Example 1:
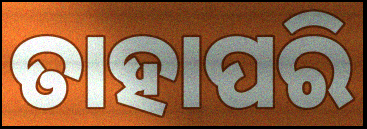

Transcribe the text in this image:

ତାହାପରି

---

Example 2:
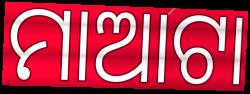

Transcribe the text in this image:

ମାଆଟା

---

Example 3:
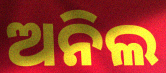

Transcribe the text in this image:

ଅନିଲ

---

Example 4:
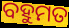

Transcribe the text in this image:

ବହୁମତ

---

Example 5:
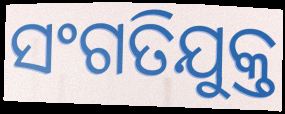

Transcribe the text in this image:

ସଂଗତିଯୁକ୍ତ